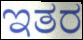
ಇತರ